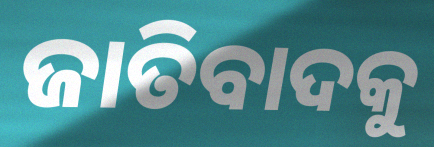
ଜାତିବାଦକୁ